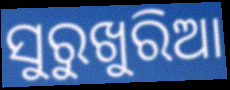
ସୁରୁଖୁରିଆ